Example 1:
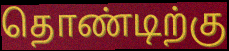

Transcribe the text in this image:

தொண்டிற்கு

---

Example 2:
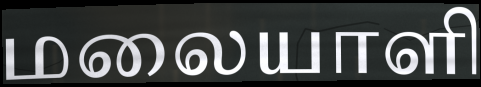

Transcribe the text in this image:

மலையாளி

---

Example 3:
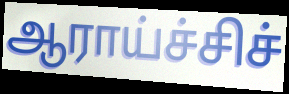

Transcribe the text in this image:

ஆராய்ச்சிச்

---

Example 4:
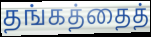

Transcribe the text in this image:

தங்கத்தைத்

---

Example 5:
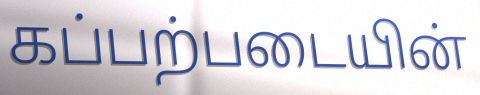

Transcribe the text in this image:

கப்பற்படையின்